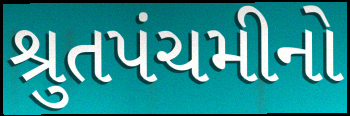
શ્રુતપંચમીનો